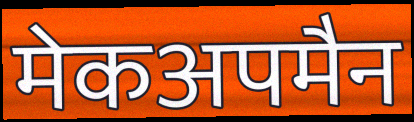
मेकअपमैन